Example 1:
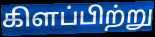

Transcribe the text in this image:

கிளப்பிற்று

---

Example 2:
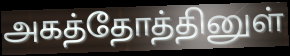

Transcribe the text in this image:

அகத்தோத்தினுள்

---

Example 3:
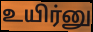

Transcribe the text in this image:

உயிர்னு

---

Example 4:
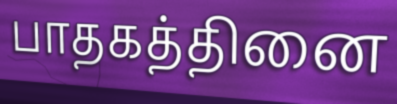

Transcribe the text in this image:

பாதகத்தினை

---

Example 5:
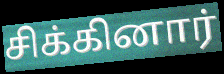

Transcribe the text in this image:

சிக்கினார்